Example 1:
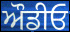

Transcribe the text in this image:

ਔਡੀਓ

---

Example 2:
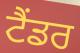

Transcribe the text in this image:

ਟੈਂਡਰ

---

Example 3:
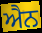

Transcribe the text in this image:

ਐਨ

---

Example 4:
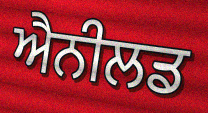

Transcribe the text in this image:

ਐਨੀਲਡ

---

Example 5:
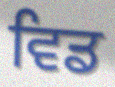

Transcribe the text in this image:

ਵਿਡ